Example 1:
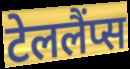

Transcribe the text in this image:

टेललैंप्स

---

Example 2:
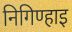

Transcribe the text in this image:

निगिण्हाइ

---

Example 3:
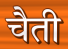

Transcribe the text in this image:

चैती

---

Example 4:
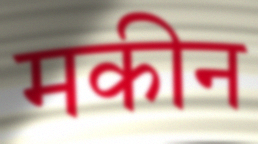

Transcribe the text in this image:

मकीन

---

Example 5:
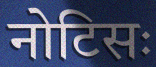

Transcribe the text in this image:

नोटिसः